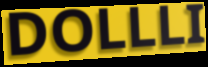
DOLLLI